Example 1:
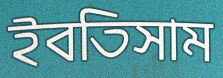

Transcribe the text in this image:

ইবতিসাম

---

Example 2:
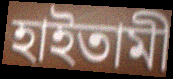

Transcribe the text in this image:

হাইতামী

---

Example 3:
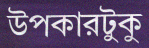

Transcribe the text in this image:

উপকারটুকু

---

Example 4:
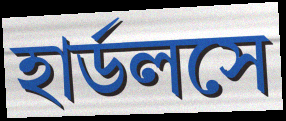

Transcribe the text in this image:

হার্ডলসে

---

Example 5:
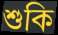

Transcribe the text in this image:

শুকি